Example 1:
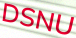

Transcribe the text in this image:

DSNU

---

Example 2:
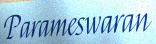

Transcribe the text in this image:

Parameswaran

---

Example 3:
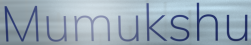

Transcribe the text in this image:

Mumukshu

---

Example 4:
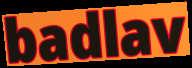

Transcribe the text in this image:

badlav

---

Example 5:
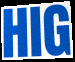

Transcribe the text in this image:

HIG